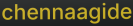
chennaagide